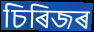
চিৰিজৰ